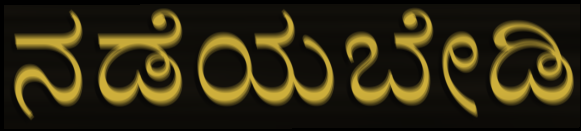
ನಡೆಯಬೇಡಿ